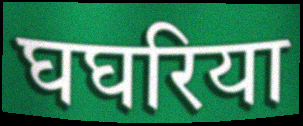
घघरिया